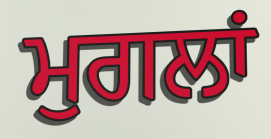
ਮੁਗਲਾਂ